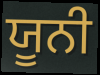
ਯੂਨੀ